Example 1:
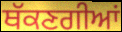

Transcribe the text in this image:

ਥੱਕਣਗੀਆਂ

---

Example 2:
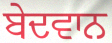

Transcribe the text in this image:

ਬੇਦਵਾਨ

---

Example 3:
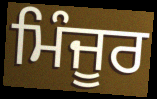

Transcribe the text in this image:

ਮਿੰਜੂਰ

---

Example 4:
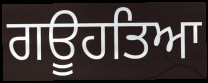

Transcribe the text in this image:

ਗਊਹਤਿਆ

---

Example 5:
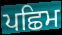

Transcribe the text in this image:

ਪਛਿਮ